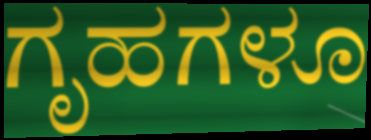
ಗೃಹಗಳೂ